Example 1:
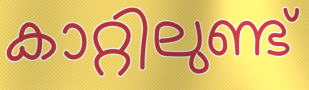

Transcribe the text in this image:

കാറ്റിലുണ്ട്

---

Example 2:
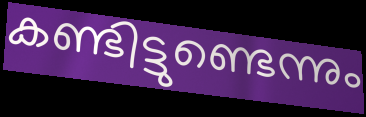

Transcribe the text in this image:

കണ്ടിട്ടുണ്ടെന്നും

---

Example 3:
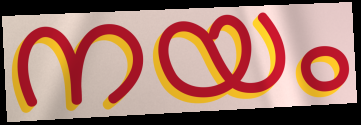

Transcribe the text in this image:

നയം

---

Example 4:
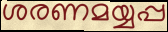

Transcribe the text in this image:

ശരണമയ്യപ്പ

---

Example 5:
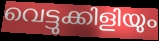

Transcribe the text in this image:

വെട്ടുക്കിളിയും